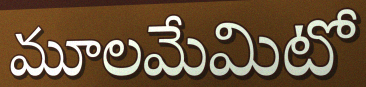
మూలమేమిటో